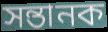
সন্তানক